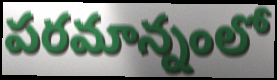
పరమాన్నంలో